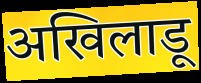
अखिलाडू